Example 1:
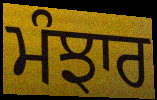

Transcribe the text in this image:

ਮੰਝਾਰ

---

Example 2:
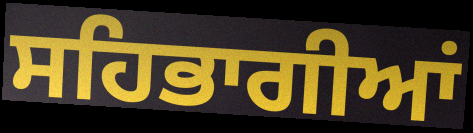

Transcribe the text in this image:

ਸਹਿਭਾਗੀਆਂ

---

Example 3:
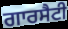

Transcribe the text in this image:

ਗਾਰਸੈਟੀ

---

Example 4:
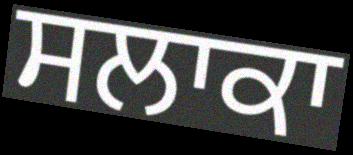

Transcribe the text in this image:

ਸਲਾਕਾ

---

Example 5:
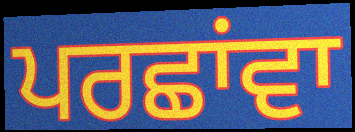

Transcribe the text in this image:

ਪਰਛਾਂਵਾ